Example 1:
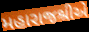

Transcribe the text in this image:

મહારાજશ્રીએ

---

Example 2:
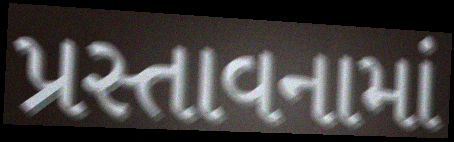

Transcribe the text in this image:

પ્રસ્તાવનામાં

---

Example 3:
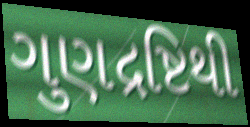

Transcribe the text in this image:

ગુણદ્રષ્ટિથી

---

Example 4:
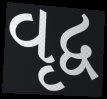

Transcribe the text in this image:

વૃદ્વ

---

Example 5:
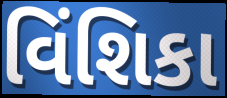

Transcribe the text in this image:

વિંશિકા